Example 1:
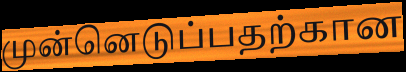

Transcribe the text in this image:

முன்னெடுப்பதற்கான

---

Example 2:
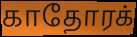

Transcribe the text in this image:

காதோரக்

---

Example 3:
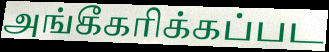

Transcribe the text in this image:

அங்கீகரிக்கப்பட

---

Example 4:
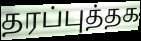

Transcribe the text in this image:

தரப்புத்தக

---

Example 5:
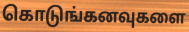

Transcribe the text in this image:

கொடுங்கனவுகளை